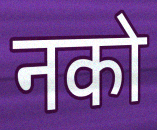
नको